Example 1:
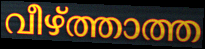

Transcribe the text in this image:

വീഴ്ത്താത്ത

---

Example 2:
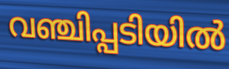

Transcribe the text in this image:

വഞ്ചിപ്പടിയിൽ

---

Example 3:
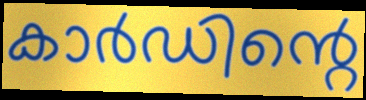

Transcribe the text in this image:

കാർഡിന്റെ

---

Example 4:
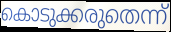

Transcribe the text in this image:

കൊടുക്കരുതെന്ന്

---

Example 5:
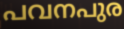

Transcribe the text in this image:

പവനപുര